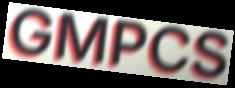
GMPCS